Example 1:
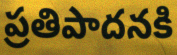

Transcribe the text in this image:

ప్రతిపాదనకి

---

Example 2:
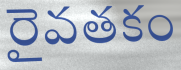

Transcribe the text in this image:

రైవతకం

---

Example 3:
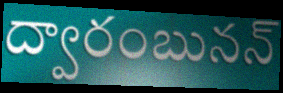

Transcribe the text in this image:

ద్వారంబునన్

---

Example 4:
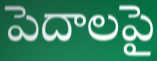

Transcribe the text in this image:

పెదాలపై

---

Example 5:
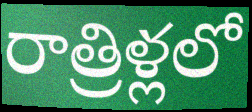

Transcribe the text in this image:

రాత్రిళ్లలో